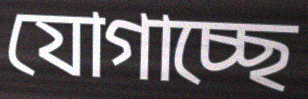
যোগাচ্ছে